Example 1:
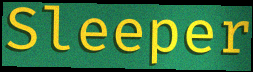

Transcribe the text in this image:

Sleeper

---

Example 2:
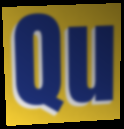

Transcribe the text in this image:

Qu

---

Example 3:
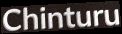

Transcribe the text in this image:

Chinturu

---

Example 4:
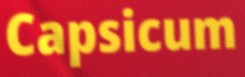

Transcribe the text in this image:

Capsicum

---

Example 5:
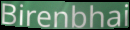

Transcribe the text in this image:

Birenbhai